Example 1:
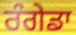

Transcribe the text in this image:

ਰੰਗੇਡਾ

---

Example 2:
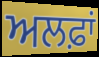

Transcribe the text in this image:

ਅਲਫ਼ਾਂ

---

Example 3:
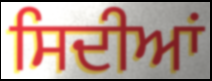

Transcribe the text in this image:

ਸਿਦੀਆਂ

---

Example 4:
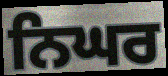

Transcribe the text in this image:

ਨਿਘਰ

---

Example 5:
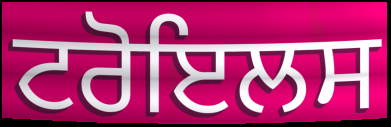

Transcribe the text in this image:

ਟਰੋਇਲਸ